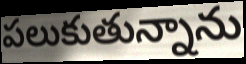
పలుకుతున్నాను